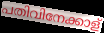
പതിവിനേക്കാള്